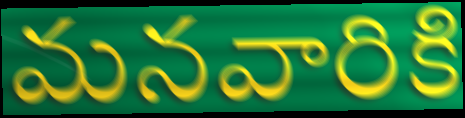
మనవారికి